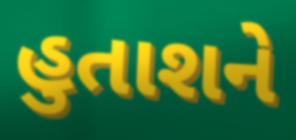
હુતાશને